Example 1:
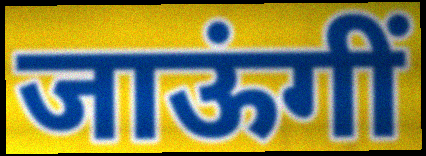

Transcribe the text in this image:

जाऊंगीं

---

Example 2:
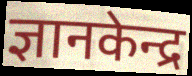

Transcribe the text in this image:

ज्ञानकेन्द्र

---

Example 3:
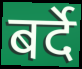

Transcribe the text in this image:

बर्दे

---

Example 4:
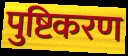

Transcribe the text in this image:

पुष्टिकरण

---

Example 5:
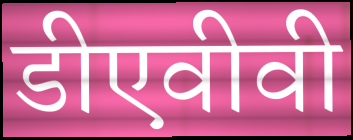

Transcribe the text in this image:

डीएवीवी